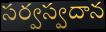
సర్వస్వదాన